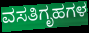
ವಸತಿಗೃಹಗಳ